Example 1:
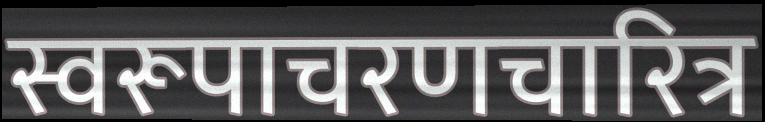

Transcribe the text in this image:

स्वरूपाचरणचारित्र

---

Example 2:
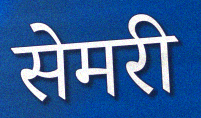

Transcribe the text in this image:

सेमरी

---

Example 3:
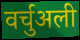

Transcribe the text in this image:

वर्चुअली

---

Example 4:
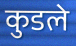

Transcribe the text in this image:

कुडले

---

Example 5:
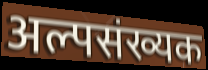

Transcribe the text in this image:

अल्पसंख्यक